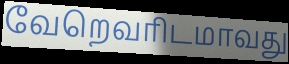
வேறெவரிடமாவது